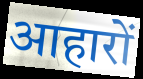
आहारों